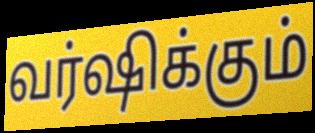
வர்ஷிக்கும்